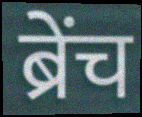
ब्रेंच